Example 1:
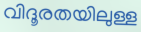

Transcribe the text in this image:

വിദൂരതയിലുള്ള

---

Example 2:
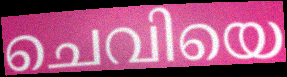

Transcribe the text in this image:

ചെവിയെ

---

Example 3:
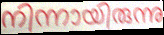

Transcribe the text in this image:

നിന്നായിരുന്നു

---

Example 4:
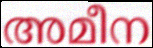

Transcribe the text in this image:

അമീന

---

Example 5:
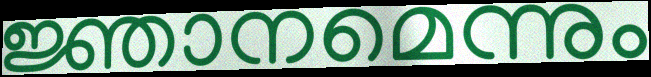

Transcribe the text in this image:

ജ്ഞാനമെന്നും